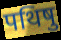
पथिषु